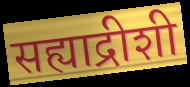
सह्याद्रीशी